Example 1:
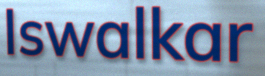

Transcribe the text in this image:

Iswalkar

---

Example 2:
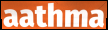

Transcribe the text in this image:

aathma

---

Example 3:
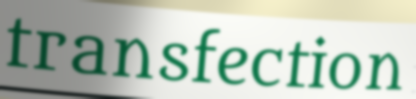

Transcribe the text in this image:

transfection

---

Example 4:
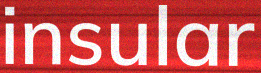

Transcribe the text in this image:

insular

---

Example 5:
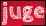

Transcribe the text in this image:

juge